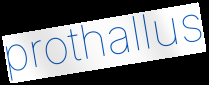
prothallus